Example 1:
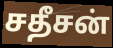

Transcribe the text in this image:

சதீசன்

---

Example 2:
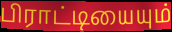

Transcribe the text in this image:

பிராட்டியையும்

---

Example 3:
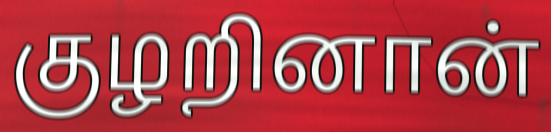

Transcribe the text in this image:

குழறினான்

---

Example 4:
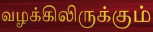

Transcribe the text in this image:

வழக்கிலிருக்கும்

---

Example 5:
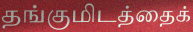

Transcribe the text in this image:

தங்குமிடத்தைக்